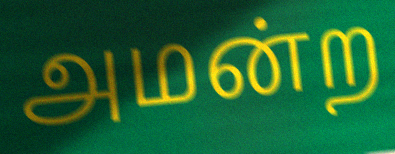
அமன்ற